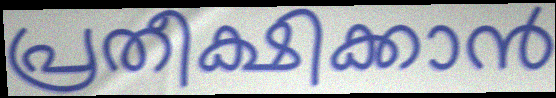
പ്രതീക്ഷിക്കാൻ